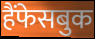
हैंफेसबुक